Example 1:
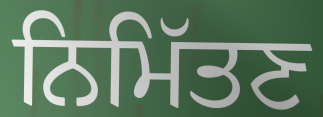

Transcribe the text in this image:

ਨਿਮਿੱਤਣ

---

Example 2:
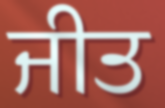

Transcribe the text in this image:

ਜੀਤ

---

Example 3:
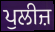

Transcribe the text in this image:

ਪੁਲੀਜ਼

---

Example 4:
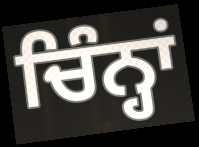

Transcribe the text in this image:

ਚਿੰਨ੍ਹਾਂ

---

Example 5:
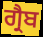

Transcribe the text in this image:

ਗ੍ਰੈਬ